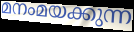
മനംമയക്കുന്ന